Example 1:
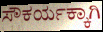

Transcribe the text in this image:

ಸೌಕರ್ಯಕ್ಕಾಗಿ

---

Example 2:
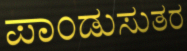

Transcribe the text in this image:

ಪಾಂಡುಸುತರ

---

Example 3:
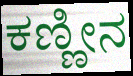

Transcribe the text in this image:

ಕಣ್ಣೀನ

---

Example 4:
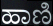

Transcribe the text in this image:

ಹಾಣಿ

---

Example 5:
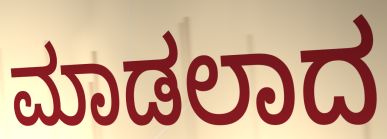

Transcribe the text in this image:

ಮಾಡಲಾದ